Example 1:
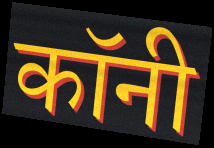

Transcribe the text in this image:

कॉनी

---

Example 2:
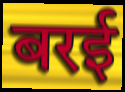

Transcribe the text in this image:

बरई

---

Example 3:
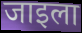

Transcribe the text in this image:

जाइला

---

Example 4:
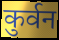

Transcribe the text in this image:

कुर्वन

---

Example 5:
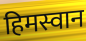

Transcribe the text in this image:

हिमस्वान